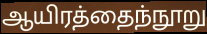
ஆயிரத்தைந்நூறு